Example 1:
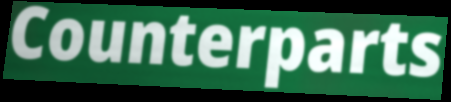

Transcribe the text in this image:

Counterparts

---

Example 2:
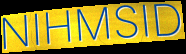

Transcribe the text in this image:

NIHMSID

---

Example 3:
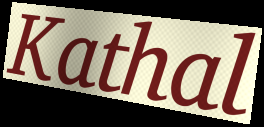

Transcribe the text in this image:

Kathal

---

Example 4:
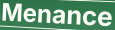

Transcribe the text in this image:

Menance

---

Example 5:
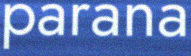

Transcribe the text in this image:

parana